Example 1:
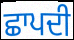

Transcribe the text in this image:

ਛਾਪਦੀ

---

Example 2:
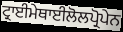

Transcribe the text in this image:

ਟ੍ਰਾਈਮੇਥਾਈਲੋਲਪ੍ਰੋਪੇਨ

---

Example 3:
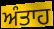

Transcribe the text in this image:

ਅੰਤਾਹ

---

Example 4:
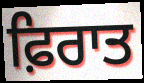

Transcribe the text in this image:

ਫ਼ਿਰਾਤ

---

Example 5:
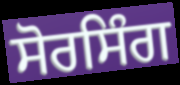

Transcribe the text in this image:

ਸੋਰਸਿੰਗ